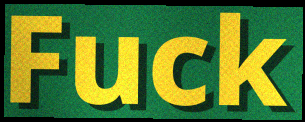
Fuck